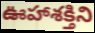
ఊహాశక్తిని